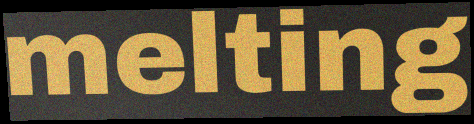
melting